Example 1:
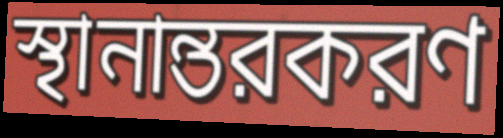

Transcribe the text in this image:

স্থানান্তরকরণ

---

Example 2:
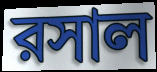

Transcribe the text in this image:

রসাল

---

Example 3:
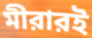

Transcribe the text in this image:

মীরারই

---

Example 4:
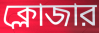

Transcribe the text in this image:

ক্লোজার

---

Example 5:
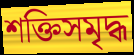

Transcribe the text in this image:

শক্তিসমৃদ্ধ